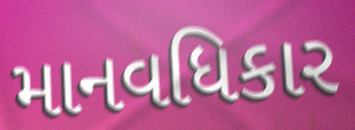
માનવધિકાર